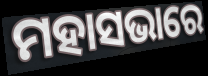
ମହାସଭାରେ